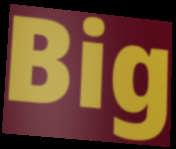
Big